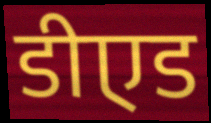
डीएड